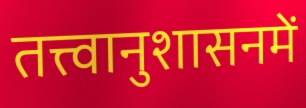
तत्त्वानुशासनमें